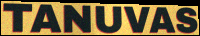
TANUVAS